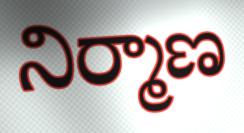
నిర్మాణ